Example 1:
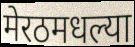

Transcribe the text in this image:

मेरठमधल्या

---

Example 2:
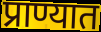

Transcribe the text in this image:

प्राण्यात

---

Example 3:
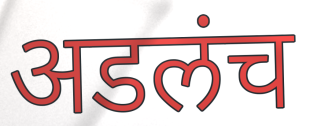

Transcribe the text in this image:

अडलंच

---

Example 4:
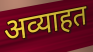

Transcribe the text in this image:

अव्याहत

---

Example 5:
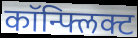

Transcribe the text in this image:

कॉन्फ्लिक्ट